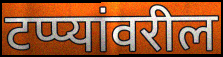
टप्प्यांवरील